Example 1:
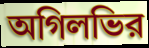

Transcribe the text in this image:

অগিলভির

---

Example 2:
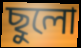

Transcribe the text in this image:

ছুলো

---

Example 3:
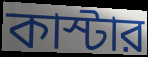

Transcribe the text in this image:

কাস্টার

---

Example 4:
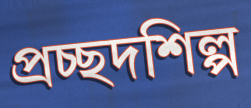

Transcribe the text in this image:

প্রচ্ছদশিল্প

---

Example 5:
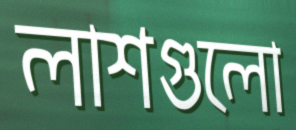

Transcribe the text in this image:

লাশগুলো